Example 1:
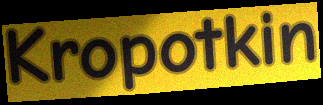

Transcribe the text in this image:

Kropotkin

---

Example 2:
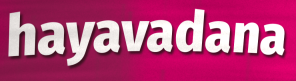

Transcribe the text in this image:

hayavadana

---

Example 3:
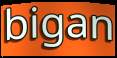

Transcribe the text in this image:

bigan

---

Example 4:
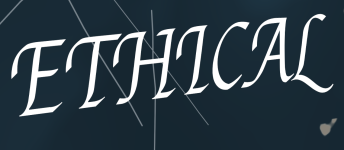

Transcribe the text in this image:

ETHICAL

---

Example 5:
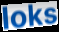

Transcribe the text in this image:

loks